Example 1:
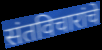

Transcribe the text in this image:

संतविचारांचे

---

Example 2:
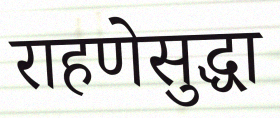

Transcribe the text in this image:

राहणेसुद्धा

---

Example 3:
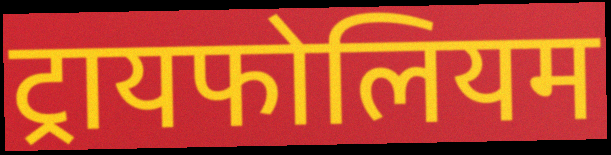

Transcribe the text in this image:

ट्रायफोलियम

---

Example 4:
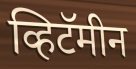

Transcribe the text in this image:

व्हिटॅमीन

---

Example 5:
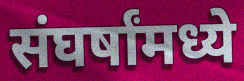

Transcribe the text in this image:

संघर्षांमध्ये